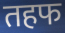
तहफ